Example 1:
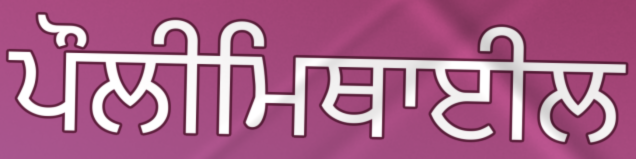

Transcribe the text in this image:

ਪੌਲੀਮਿਥਾਈਲ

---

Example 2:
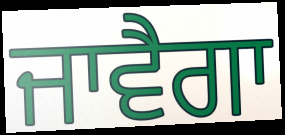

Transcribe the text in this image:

ਜਾਵੈਗਾ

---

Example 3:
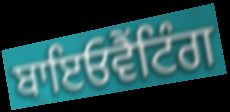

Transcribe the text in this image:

ਬਾਇਓਵੈਂਟਿੰਗ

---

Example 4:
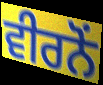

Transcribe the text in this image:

ਵੀਰਨੋਂ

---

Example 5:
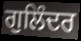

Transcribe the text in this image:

ਗੁਲਿੰਦਰ